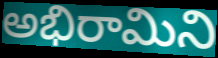
అభిరామిని